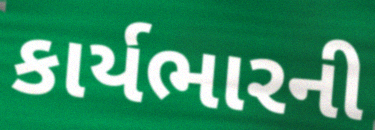
કાર્યભારની